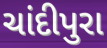
ચાંદીપુરા